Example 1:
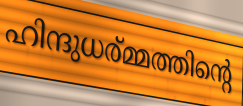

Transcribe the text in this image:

ഹിന്ദുധര്മ്മത്തിന്റെ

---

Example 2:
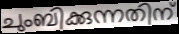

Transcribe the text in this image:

ചുംബിക്കുന്നതിന്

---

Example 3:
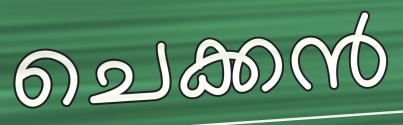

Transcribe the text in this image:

ചെക്കൻ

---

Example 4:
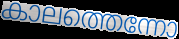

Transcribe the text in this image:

കാലത്തെന്നോ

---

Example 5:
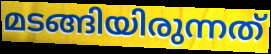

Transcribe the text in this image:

മടങ്ങിയിരുന്നത്